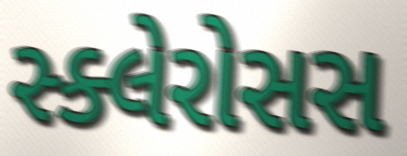
સ્ક્લેરોસસ